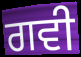
ਗਵੀ